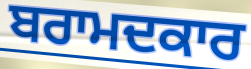
ਬਰਾਮਦਕਾਰ